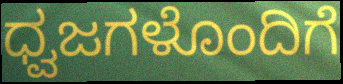
ಧ್ವಜಗಳೊಂದಿಗೆ